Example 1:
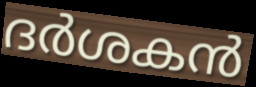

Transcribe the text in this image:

ദർശകൻ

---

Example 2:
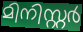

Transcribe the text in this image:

മിനിസ്റ്റർ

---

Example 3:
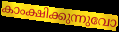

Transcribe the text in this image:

കാംക്ഷിക്കുന്നുവോ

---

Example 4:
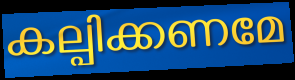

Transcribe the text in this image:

കല്പിക്കണമേ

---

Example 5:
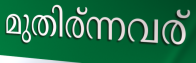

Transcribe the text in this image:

മുതിര്ന്നവര്